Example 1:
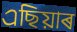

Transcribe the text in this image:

এছিয়াৰ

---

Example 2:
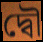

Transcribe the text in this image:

দ্বৌ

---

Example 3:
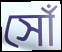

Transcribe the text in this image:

সোঁ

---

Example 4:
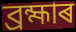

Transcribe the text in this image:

ব্ৰহ্মাৰ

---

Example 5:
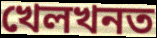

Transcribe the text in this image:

খেলখনত